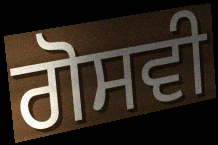
ਗੋਸਵੀ